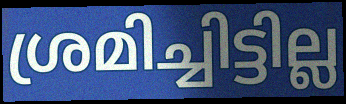
ശ്രമിച്ചിട്ടില്ല